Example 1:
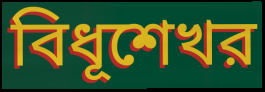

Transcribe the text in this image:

বিধূশেখর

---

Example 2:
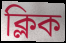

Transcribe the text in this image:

ক্লিক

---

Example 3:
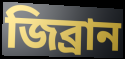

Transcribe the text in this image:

জিব্রান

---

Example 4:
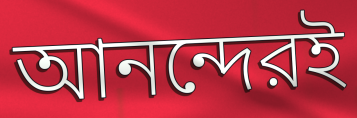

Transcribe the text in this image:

আনন্দেরই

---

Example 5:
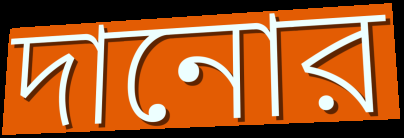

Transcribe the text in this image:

দানোর